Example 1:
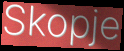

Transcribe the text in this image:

Skopje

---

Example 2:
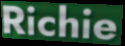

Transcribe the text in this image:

Richie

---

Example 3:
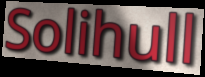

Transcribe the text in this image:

Solihull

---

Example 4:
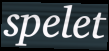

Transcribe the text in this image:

spelet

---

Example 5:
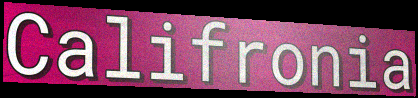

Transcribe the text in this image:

Califronia